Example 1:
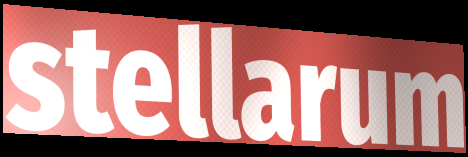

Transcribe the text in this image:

stellarum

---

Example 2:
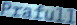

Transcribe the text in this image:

Prafull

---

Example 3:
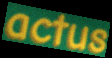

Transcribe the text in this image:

actus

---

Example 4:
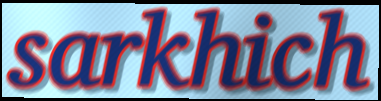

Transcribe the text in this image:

sarkhich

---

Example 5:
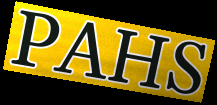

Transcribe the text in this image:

PAHS